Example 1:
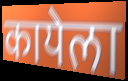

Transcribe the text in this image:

कायेला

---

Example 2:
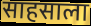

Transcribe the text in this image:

साहसाला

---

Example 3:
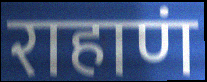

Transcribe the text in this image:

राहाणं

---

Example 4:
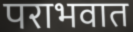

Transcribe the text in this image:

पराभवात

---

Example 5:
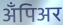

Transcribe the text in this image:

अँपिअर